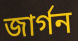
জার্গন